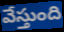
వేస్తుంది